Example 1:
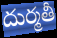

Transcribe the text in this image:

దుర్మతీ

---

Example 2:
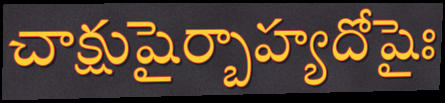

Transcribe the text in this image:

చాక్షుషైర్బాహ్యదోషైః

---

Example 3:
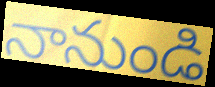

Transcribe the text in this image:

నానుండి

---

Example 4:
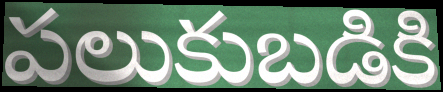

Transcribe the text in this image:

పలుకుబడికి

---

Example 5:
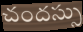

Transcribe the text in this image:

చందస్సు